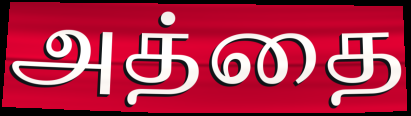
அத்தை